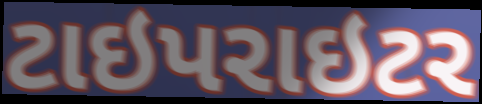
ટાઇપરાઇટર